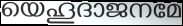
യെഹൂദാജനമേ